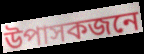
উপাসকজনে